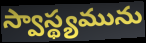
స్వాస్థ్యమును